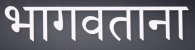
भागवताना